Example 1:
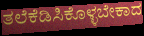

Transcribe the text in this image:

ತಲೆಕೆಡಿಸಿಕೊಳ್ಳಬೇಕಾದ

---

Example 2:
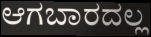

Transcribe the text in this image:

ಆಗಬಾರದಲ್ಲ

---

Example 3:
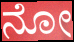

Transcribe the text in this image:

ನೋ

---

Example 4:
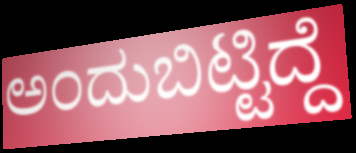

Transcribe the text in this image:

ಅಂದುಬಿಟ್ಟಿದ್ದೆ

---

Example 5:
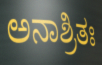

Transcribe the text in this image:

ಅನಾಶ್ರಿತಃ